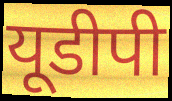
यूडीपी